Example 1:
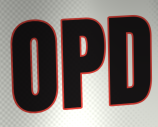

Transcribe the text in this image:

OPD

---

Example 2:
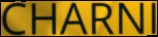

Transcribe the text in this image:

CHARNI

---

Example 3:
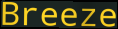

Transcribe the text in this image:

Breeze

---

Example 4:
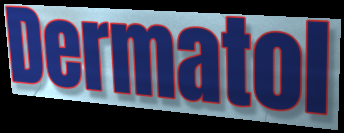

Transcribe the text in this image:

Dermatol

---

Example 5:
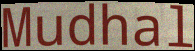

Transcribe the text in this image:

Mudhal